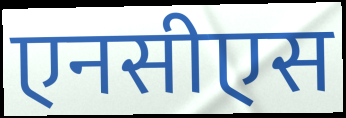
एनसीएस